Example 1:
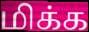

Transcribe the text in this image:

மிக்க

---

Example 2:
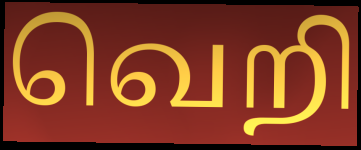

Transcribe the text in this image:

வெறி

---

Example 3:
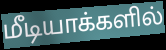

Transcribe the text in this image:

மீடியாக்களில்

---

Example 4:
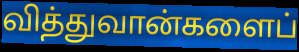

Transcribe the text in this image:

வித்துவான்களைப்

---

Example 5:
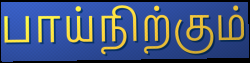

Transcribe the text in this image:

பாய்நிற்கும்